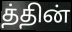
த்தின்